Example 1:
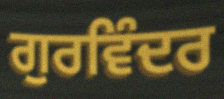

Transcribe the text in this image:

ਗੁਰਵਿੰਦਰ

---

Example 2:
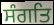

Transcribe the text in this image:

ਸੰਗਤਿ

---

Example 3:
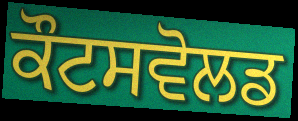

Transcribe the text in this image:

ਕੌਟਸਵੋਲਡ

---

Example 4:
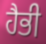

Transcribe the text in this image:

ਹੈਭੀ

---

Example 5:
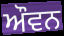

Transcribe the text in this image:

ਔਵਨ